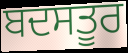
ਬਦਸਤੂਰ